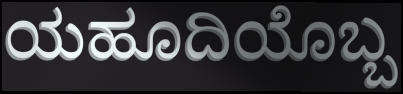
ಯಹೂದಿಯೊಬ್ಬ